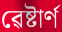
ৱেষ্টাৰ্ণ